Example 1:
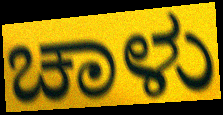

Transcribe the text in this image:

ಚಾಳು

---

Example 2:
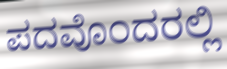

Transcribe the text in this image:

ಪದವೊಂದರಲ್ಲಿ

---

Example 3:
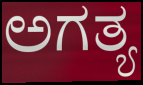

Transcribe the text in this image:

ಅಗತ್ಯ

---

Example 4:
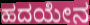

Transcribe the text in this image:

ಹದಯೇನ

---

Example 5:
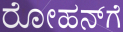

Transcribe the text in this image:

ರೋಹನ್‌ಗೆ